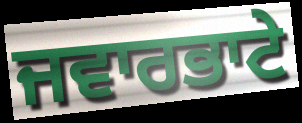
ਜਵਾਰਭਾਟੇ